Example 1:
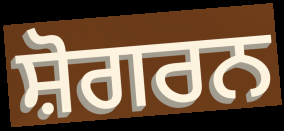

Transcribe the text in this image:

ਸ਼ੋਗਰਨ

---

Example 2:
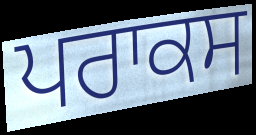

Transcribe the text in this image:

ਪਰਾਕਸ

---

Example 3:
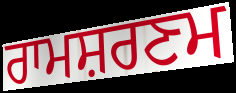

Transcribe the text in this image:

ਰਾਮਸ਼ਰਣਮ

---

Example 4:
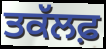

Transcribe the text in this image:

ਤਕੱਲਫ਼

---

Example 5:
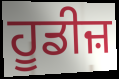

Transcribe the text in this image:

ਹੂਡੀਜ਼